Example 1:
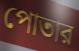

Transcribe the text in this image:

পোতার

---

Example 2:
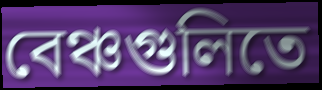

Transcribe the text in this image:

বেঞ্চগুলিতে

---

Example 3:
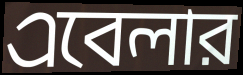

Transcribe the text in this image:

এবেলার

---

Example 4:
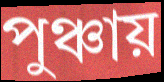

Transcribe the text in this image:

পুঞ্চায়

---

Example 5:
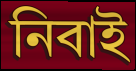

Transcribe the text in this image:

নিবাই